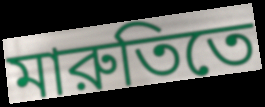
মারুতিতে